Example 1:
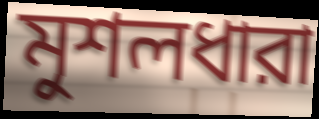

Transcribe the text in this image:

মুশলধারা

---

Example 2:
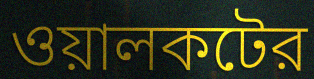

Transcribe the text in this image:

ওয়ালকটের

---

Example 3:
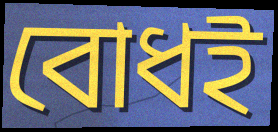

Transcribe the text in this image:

বোধই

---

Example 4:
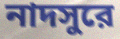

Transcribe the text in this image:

নাদসুরে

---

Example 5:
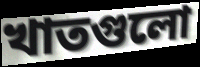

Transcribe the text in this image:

খাতগুলো